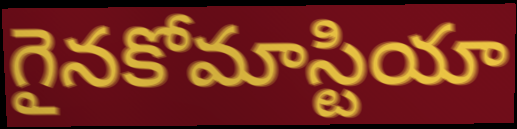
గైనకోమాస్టియా